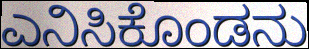
ಎನಿಸಿಕೊಂಡನು